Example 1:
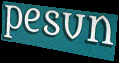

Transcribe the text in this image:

pesun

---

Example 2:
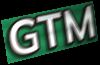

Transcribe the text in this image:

GTM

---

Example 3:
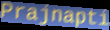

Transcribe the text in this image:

Prajnapti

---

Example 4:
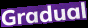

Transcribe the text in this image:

Gradual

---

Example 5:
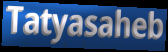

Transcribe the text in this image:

Tatyasaheb